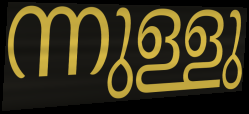
ന്നുള്ളു